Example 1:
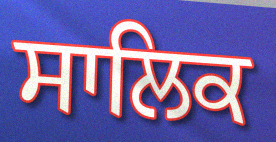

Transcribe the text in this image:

ਸਾਲਿਕ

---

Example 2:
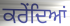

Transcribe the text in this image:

ਕਰੇਂਦਿਆਂ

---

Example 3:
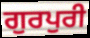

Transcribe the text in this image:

ਗੁਰਪੁਰੀ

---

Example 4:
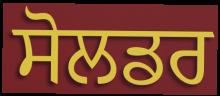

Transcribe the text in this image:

ਸੋਲਡਰ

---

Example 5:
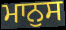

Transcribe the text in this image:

ਮਾਨੁਸ